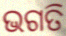
ଭଗତି